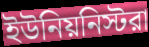
ইউনিয়নিস্টরা